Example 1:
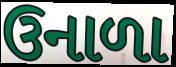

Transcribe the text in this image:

ઉનાળા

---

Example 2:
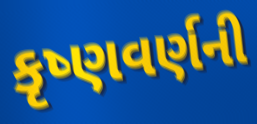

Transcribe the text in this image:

કૃષ્ણવર્ણની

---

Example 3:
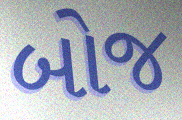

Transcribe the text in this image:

બોજ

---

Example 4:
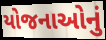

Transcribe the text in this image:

યોજનાઓનું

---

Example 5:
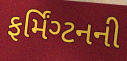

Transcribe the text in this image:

ફર્મિંગ્ટનની